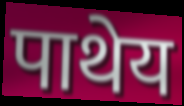
पाथेय